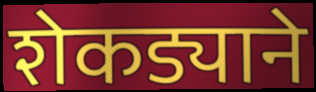
शेकड्याने